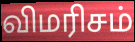
விமரிசம்